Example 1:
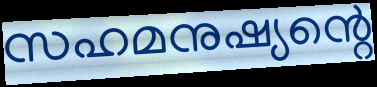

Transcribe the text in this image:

സഹമനുഷ്യന്റെ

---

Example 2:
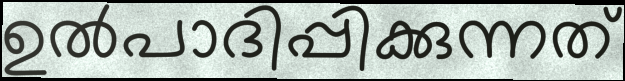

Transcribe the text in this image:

ഉൽപാദിപ്പിക്കുന്നത്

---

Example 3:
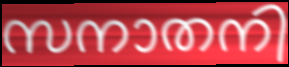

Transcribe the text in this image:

സനാതനി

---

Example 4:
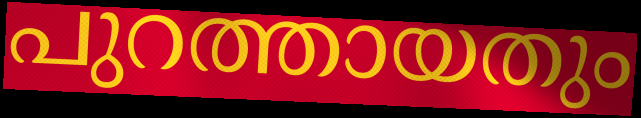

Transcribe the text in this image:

പുറത്തായതും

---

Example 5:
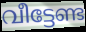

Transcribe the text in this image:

വീട്ടേണ്ട